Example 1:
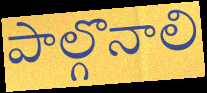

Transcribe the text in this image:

పాల్గొనాలి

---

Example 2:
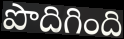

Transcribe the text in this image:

పొదిగింది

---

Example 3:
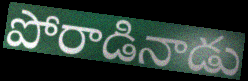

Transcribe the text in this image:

పోరాడినాడు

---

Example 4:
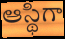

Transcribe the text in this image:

ఆస్థిగా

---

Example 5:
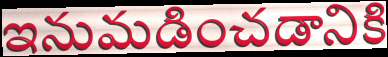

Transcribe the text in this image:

ఇనుమడించడానికి